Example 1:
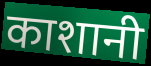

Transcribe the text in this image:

काशानी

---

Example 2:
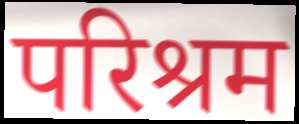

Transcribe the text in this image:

परिश्रम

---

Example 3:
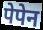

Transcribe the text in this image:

पेपेन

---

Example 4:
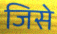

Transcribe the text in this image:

जिसे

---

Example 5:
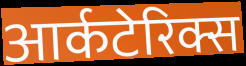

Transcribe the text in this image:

आर्कटेरिक्स